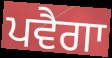
ਪਵੈਗਾ